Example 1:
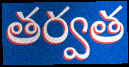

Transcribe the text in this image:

తర్వత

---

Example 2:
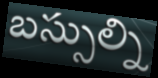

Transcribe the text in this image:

బస్సుల్ని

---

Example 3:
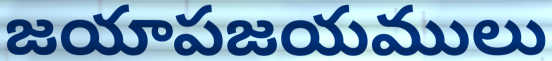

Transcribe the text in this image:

జయాపజయములు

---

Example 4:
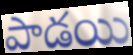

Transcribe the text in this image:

పాడయి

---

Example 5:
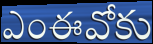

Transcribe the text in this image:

ఎంఈవోకు